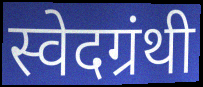
स्वेदग्रंथी